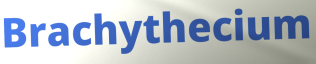
Brachythecium